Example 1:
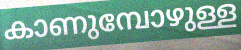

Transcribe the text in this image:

കാണുമ്പോഴുള്ള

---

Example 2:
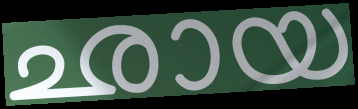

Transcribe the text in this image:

ഛായ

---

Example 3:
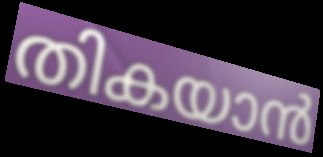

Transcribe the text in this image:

തികയാൻ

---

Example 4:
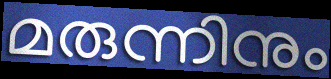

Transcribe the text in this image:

മരുന്നിനും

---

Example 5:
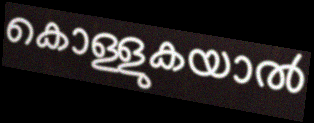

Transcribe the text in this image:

കൊള്ളുകയാൽ